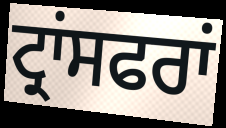
ਟ੍ਰਾਂਸਫਰਾਂ